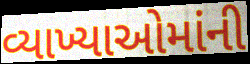
વ્યાખ્યાઓમાંની